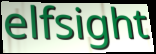
elfsight